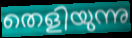
തെളിയുന്നു